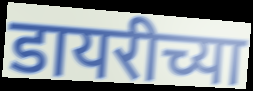
डायरीच्या